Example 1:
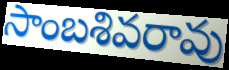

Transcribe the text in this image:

సాంబశివరావు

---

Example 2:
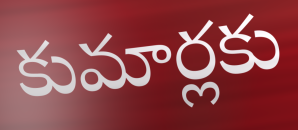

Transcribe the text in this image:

కుమార్లకు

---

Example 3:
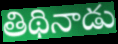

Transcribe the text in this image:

తిథినాడు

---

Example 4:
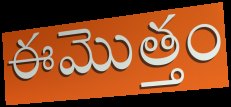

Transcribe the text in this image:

ఈమొత్తం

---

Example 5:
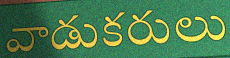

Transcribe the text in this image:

వాడుకరులు